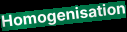
Homogenisation